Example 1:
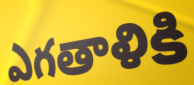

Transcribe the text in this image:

ఎగతాళికి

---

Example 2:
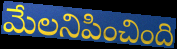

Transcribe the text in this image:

మేలనిపించింది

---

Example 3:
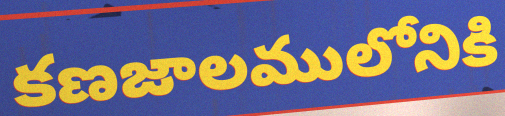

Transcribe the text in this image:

కణజాలములోనికి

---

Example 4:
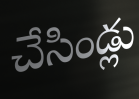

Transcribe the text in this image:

చేసిండ్లు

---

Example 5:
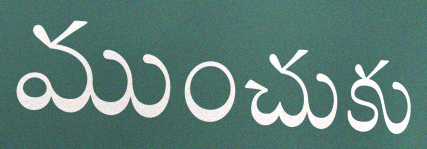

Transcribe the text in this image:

ముంచుకు